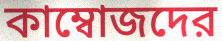
কাম্বোজদের